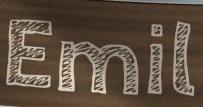
Emil